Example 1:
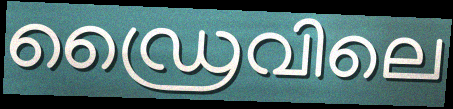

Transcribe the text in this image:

ഡ്രൈവിലെ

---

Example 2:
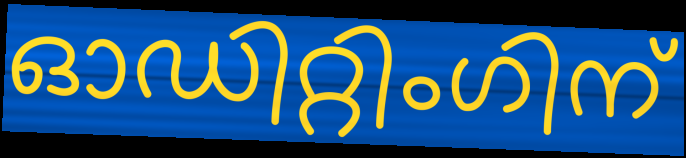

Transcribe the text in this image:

ഓഡിറ്റിംഗിന്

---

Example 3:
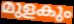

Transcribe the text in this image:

മുളകും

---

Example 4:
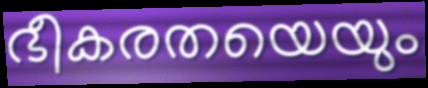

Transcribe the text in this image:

ഭീകരതയെയും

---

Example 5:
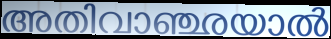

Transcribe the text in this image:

അതിവാഞ്ഛയാൽ